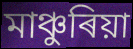
মাঞ্চুৰিয়া